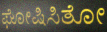
ಘೋಷಿಸಿತೋ